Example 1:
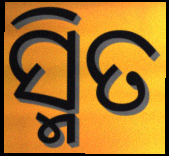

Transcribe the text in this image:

ସ୍ମିତ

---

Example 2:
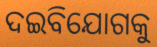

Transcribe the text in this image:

ଦଇବିଯୋଗକୁ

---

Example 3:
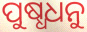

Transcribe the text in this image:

ପୁଷ୍ଧଧନୁ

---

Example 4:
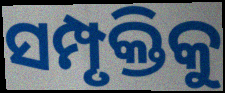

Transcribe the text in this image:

ସମ୍ପୃକ୍ତିକୁ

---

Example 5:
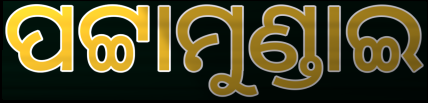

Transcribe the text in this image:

ପଟ୍ଟାମୁଣ୍ଡାଇ